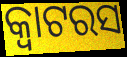
କ୍ୱାଟରସ